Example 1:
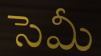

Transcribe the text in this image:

సెమీ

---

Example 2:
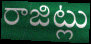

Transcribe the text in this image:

రాజిట్లు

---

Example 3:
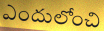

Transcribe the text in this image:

ఎందులోంచి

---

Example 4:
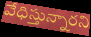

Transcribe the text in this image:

వేధిస్తున్నారని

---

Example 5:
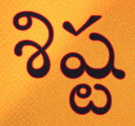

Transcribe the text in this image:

శిష్ట